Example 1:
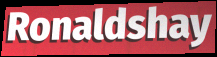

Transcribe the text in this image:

Ronaldshay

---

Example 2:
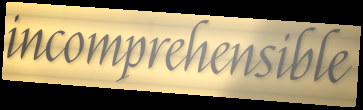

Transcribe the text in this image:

incomprehensible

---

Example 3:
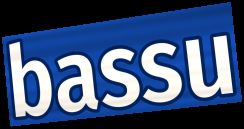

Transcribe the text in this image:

bassu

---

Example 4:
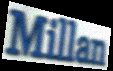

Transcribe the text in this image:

Millan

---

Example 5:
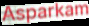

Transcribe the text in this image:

Asparkam